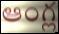
ఆంగ్ల